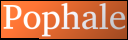
Pophale